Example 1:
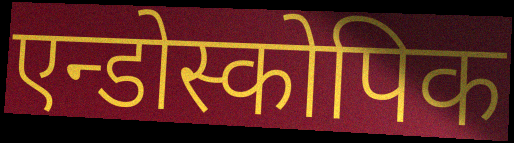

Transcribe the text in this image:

एन्डोस्कोपिक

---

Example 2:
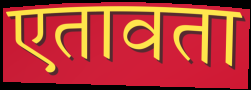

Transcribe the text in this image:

एतावता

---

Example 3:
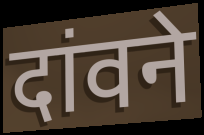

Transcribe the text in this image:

दांवने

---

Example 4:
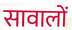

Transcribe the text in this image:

सावालों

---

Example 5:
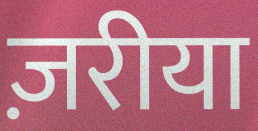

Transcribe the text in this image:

ज़रीया